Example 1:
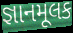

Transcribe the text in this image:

જ્ઞાનમૂલક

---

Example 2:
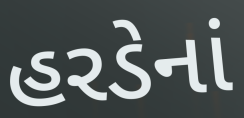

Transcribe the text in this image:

હરડેનાં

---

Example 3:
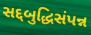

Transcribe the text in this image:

સદ્દબુદ્ધિસંપન્ન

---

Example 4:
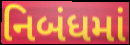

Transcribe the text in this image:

નિબંધમાં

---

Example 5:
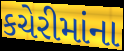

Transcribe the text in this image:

કચેરીમાંના